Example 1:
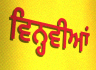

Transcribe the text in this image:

ਵਿਨ੍ਹਵੀਆਂ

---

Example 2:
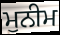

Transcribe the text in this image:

ਮੁਨੀਮ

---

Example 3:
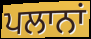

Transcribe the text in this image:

ਪਲਾਨਾਂ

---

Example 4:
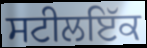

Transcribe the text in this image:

ਸਟੀਲਇੱਕ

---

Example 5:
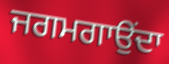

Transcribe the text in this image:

ਜਗਮਗਾਉਂਦਾ